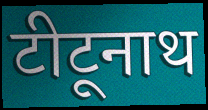
टीटूनाथ